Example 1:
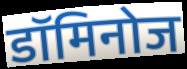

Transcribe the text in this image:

डॉमिनोज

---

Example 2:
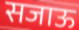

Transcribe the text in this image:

सजाऊ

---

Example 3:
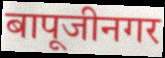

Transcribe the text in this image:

बापूजीनगर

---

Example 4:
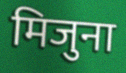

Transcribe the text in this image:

मिजुना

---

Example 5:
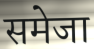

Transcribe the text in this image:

समेजा